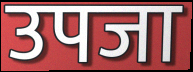
उपजा